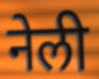
नेली